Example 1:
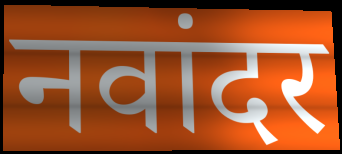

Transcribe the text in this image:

नवांदर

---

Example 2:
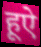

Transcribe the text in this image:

हूऐ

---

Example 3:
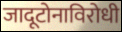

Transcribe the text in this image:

जादूटोनाविरोधी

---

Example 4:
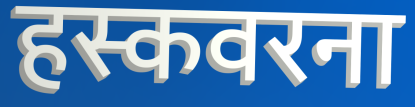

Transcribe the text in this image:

हस्कवरना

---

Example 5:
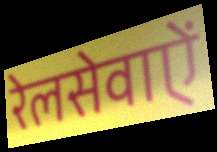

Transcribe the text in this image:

रेलसेवाऐं